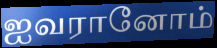
ஐவரானோம்